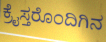
ಕ್ರೈಸ್ತರೊಂದಿಗಿನ